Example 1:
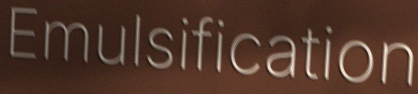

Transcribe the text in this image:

Emulsification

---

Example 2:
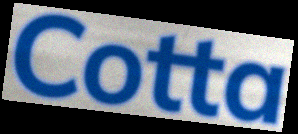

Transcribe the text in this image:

Cotta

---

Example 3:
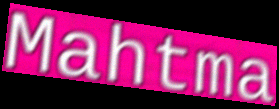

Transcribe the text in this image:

Mahtma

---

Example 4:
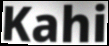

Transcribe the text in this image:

Kahi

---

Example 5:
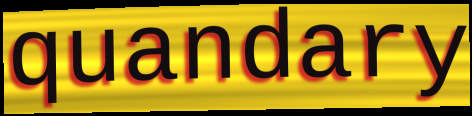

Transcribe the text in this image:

quandary